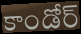
కాండోర్